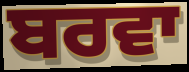
ਬਰਵਾ